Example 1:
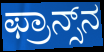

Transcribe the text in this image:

ಫ್ರಾನ್ಸ್‌ನ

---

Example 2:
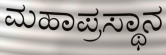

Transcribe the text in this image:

ಮಹಾಪ್ರಸ್ಥಾನ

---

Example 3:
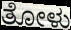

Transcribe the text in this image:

ತೋಳು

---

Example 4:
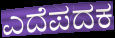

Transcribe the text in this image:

ಎದೆಪದಕ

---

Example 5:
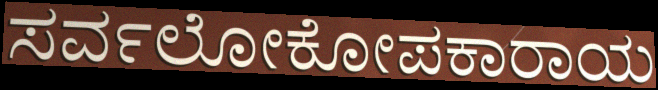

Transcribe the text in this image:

ಸರ್ವಲೋಕೋಪಕಾರಾಯ